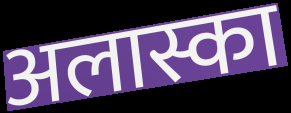
अलास्का